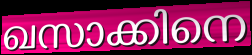
ഖസാക്കിനെ